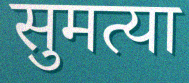
सुमत्या